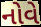
નોવે